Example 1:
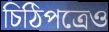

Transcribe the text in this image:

চিঠিপত্রেও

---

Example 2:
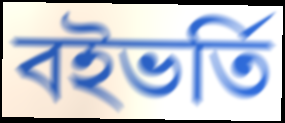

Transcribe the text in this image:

বইভর্তি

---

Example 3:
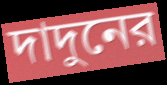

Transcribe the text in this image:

দাদুনের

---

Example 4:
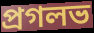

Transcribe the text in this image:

প্রগলভ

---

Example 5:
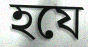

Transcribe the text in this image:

হযে